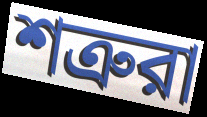
শত্রুরা